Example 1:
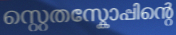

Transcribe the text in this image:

സ്റ്റെതസ്കോപ്പിന്റെ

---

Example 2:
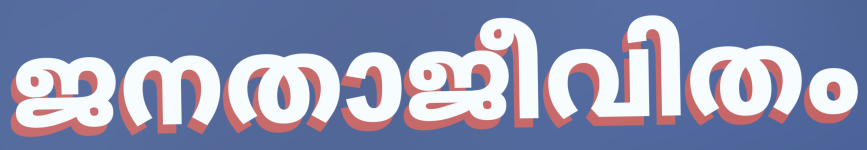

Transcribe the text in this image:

ജനതാജീവിതം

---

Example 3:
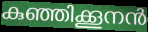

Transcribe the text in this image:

കുഞ്ഞിക്കൂനൻ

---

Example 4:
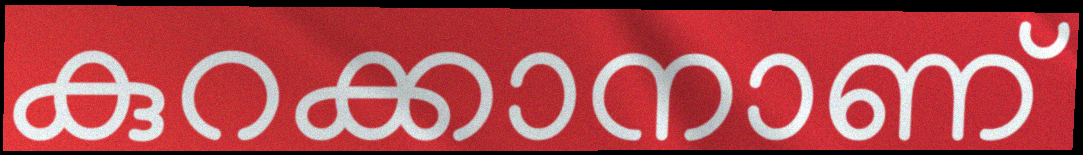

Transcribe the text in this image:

കുറക്കാനാണ്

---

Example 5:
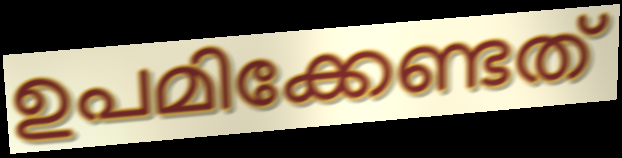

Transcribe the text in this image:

ഉപമിക്കേണ്ടത്